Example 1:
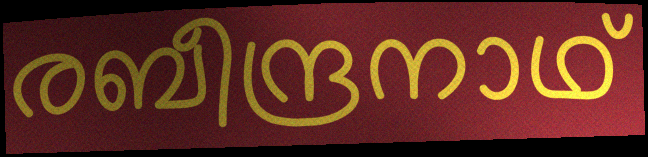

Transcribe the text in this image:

രബീന്ദ്രനാഥ്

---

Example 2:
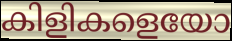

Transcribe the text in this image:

കിളികളെയോ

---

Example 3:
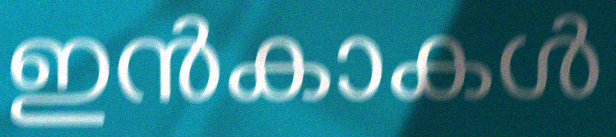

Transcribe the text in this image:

ഇൻകാകൾ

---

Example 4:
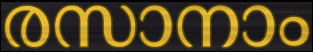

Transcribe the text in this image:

രസാനാം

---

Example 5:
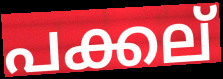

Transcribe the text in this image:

പക്കല്